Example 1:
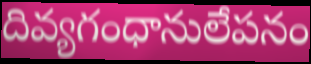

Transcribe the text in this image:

దివ్యగంధానులేపనం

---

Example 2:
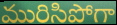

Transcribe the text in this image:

మురిసిపోగా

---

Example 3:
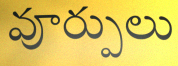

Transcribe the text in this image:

వూర్పులు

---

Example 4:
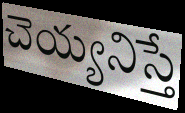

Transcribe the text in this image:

చెయ్యనిస్తే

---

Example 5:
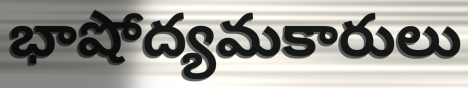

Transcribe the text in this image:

భాషోద్యమకారులు